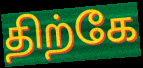
திற்கே